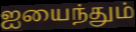
ஐயைந்தும்